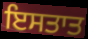
ਇਸਤਾਤ